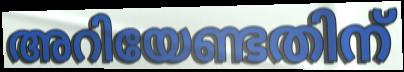
അറിയേണ്ടതിന്